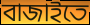
বাজাইতে